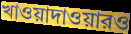
খাওয়াদাওয়ারও